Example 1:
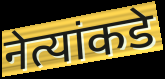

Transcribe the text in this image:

नेत्यांकडे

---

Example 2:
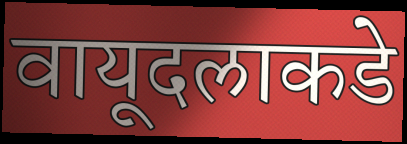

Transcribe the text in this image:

वायूदलाकडे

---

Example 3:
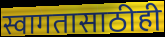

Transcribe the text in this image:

स्वागतासाठीही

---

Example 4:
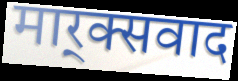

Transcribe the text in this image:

मार्क्सवाद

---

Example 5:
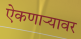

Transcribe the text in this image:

ऐकणार्‍यावर